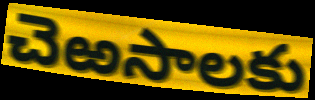
చెఱసాలకు